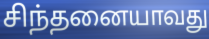
சிந்தனையாவது